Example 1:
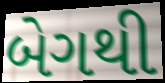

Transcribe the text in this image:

બેગથી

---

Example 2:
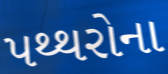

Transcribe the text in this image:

પથ્થરોના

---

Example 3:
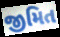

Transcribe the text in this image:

જીમિત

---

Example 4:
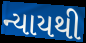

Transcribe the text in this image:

ન્યાયથી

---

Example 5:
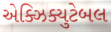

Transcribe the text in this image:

એક્ઝિક્યુટેબલ